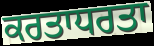
ਕਰਤਾਧਰਤਾ